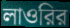
লাওরির